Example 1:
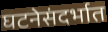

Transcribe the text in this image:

घटनेसंदर्भात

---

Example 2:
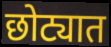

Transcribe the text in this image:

छोट्यात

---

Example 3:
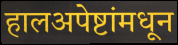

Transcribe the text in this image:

हालअपेष्टांमधून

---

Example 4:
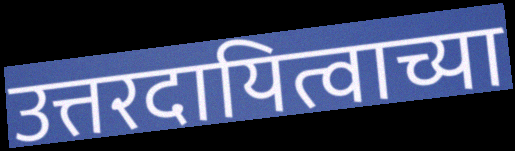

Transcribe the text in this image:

उत्तरदायित्वाच्या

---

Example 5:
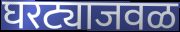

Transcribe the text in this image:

घरट्याजवळ